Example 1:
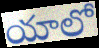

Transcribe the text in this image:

యాలో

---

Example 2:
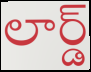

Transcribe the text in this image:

లార్డ్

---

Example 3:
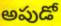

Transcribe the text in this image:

అపుడో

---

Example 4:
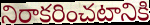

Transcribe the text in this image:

నిరాకరించటానికి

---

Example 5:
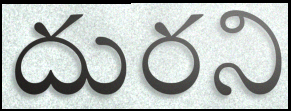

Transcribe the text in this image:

దురని